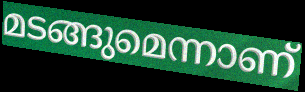
മടങ്ങുമെന്നാണ്